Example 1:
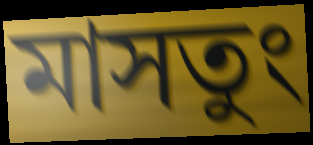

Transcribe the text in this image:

মাসতুং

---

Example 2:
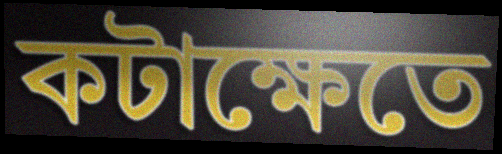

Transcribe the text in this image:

কটাক্ষেতে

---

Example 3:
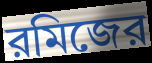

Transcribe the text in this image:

রমিজের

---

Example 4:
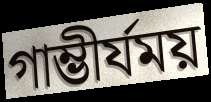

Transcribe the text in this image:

গাম্ভীর্যময়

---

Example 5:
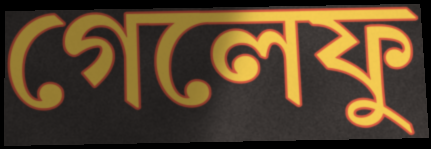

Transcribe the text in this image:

গেলেফু